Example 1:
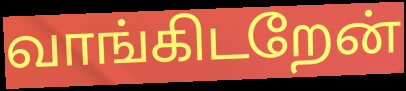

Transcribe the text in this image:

வாங்கிடறேன்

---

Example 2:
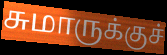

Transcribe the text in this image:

சுமாருக்குச்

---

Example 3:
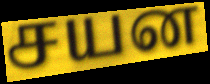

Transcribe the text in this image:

சயன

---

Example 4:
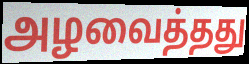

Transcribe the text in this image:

அழவைத்தது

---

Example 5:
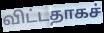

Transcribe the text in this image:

விட்டதாகச்